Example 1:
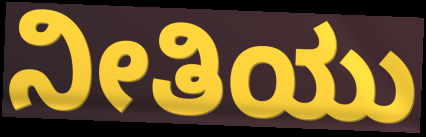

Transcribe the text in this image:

ನೀತಿಯು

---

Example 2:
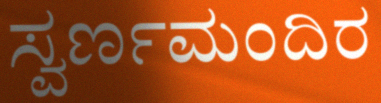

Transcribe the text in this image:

ಸ್ವರ್ಣಮಂದಿರ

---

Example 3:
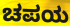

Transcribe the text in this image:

ಚಪಯ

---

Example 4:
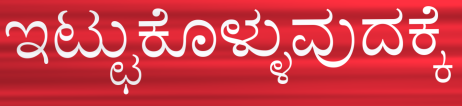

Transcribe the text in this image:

ಇಟ್ಟುಕೊಳ್ಳುವುದಕ್ಕೆ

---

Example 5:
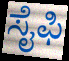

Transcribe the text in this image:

ಸೈಫಿ